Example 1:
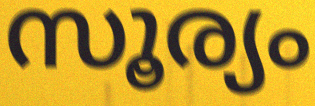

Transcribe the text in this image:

സൂര്യം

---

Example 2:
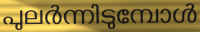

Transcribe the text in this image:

പുലർന്നിടുമ്പോൾ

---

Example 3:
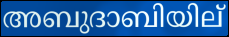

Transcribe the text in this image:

അബുദാബിയില്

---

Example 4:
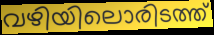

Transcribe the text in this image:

വഴിയിലൊരിടത്ത്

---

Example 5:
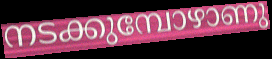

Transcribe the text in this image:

നടക്കുമ്പോഴാണു